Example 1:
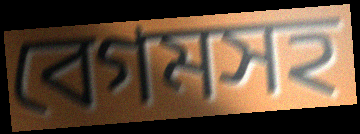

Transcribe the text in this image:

বেগমসহ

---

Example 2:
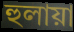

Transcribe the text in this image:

হুলায়া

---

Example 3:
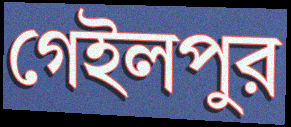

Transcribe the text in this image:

গেইলপুর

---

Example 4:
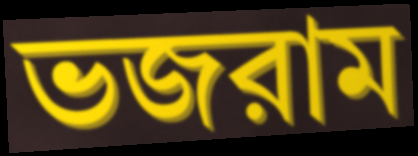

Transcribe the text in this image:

ভজরাম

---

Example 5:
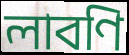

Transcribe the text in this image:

লাবণি